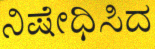
ನಿಷೇಧಿಸಿದ